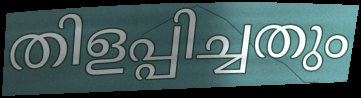
തിളപ്പിച്ചതും